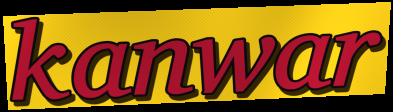
kanwar